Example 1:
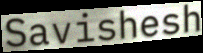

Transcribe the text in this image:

Savishesh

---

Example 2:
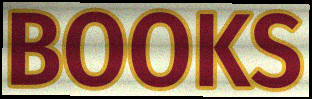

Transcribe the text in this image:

BOOKS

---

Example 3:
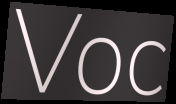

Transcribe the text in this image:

Voc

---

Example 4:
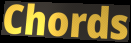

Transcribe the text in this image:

Chords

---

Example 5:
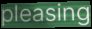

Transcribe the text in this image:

pleasing